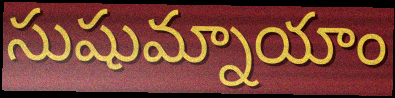
సుషుమ్నాయాం